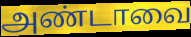
அண்டாவை